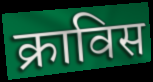
क्राविस